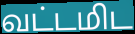
வட்டமிட